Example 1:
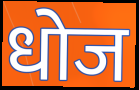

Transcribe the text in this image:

धोज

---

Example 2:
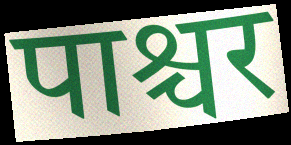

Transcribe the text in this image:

पाश्चर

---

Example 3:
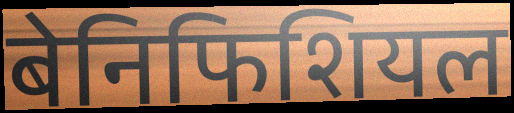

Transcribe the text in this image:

बेनिफिशियल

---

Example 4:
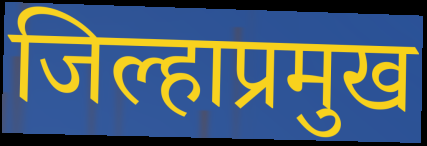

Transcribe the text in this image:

जिल्हाप्रमुख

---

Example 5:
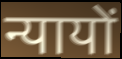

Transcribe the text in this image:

न्यायों